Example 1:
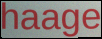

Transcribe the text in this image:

haage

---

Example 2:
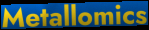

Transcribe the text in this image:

Metallomics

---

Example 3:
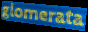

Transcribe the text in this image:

glomerata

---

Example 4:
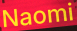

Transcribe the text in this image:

Naomi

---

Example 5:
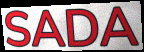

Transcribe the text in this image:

SADA